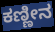
ಕಣ್ಣೀನ